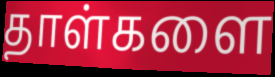
தாள்களை